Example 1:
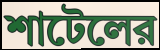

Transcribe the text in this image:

শাটেলের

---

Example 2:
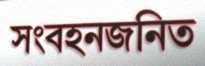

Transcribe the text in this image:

সংবহনজনিত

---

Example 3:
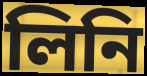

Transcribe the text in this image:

লিনি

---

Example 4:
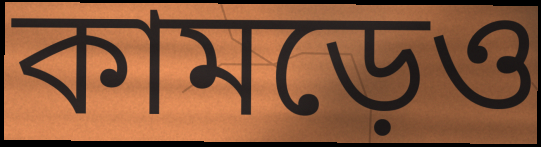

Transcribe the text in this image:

কামড়েও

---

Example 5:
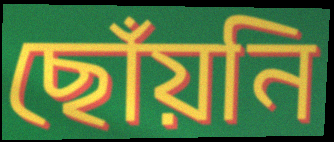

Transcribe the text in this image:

ছোঁয়নি